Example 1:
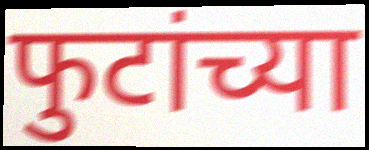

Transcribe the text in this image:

फुटांच्या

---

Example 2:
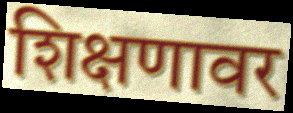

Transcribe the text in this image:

शिक्षणावर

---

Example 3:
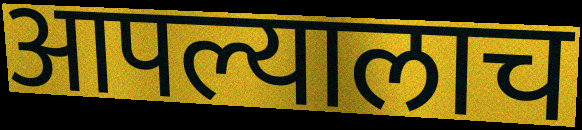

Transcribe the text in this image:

आपल्यालाच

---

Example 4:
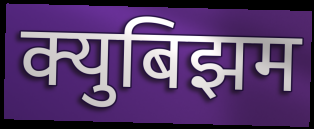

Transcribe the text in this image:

क्युबिझम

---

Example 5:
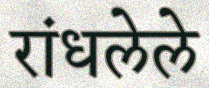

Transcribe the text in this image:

रांधलेले